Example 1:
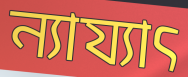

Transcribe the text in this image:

ন্যায্যাৎ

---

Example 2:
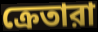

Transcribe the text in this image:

ক্রেতারা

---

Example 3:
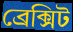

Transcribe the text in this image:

ব্রেক্সিট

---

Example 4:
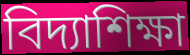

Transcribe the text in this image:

বিদ্যাশিক্ষা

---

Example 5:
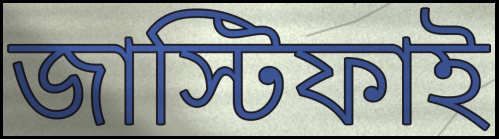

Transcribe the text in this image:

জাস্টিফাই